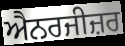
ਐਨਰਜੀਜ਼ਰ